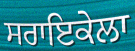
ਸਰਾਇਕੇਲਾ